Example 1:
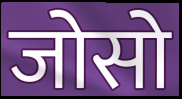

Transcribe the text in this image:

जोसो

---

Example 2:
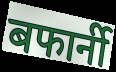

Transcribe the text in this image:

बफार्नी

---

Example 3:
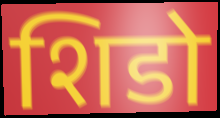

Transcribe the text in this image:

शिडो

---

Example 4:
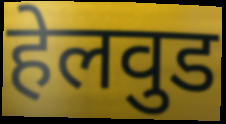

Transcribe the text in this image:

हेलवुड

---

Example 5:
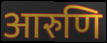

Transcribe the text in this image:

आरुणि